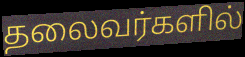
தலைவர்களில்